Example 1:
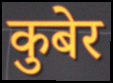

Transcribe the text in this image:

कुबेर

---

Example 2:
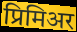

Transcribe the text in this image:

प्रिमिअर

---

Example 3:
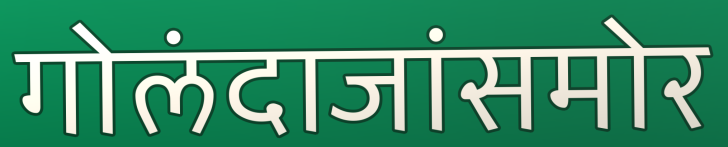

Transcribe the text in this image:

गोलंदाजांसमोर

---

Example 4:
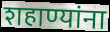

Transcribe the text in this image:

शहाण्यांना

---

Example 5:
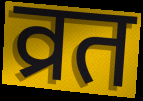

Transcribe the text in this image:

व्रत